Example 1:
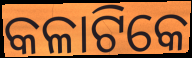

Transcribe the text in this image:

କଳାଟିକେ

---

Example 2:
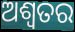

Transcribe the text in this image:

ଅଶ୍ୱତର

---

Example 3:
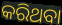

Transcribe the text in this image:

କରିଥବା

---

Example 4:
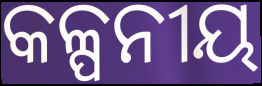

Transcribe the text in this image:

କଳ୍ପନୀୟ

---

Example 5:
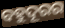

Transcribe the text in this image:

ବହୁଦୂରର